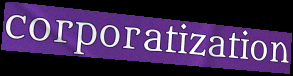
corporatization